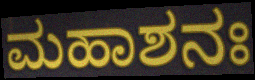
ಮಹಾಶನಃ